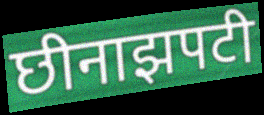
छीनाझपटी